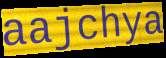
aajchya